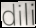
dili